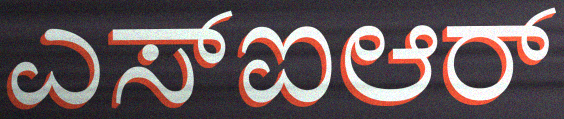
ಎಸ್ಐಆರ್